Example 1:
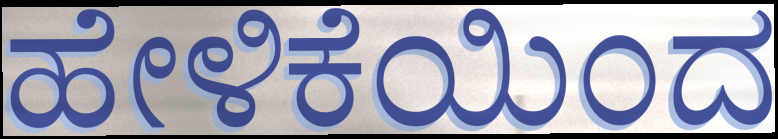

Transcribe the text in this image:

ಹೇಳಿಕೆಯಿಂದ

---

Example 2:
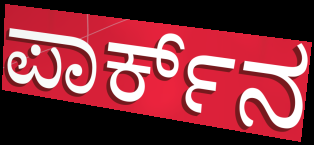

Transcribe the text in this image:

ಪಾರ್ಕ್‌ನ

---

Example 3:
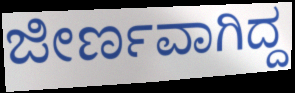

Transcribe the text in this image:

ಜೀರ್ಣವಾಗಿದ್ದ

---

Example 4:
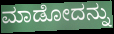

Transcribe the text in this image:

ಮಾಡೋದನ್ನು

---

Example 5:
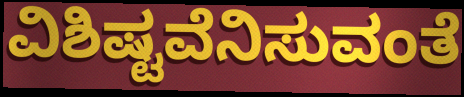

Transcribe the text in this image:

ವಿಶಿಷ್ಟವೆನಿಸುವಂತೆ